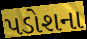
પડોશના